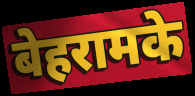
बेहरामके